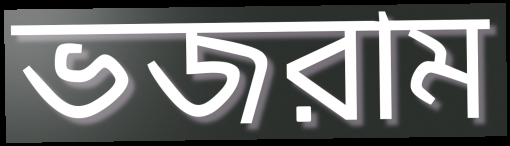
ভজরাম